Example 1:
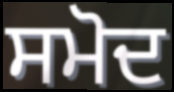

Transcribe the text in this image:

ਸਮੋਦ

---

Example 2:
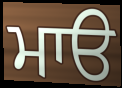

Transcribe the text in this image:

ਮਾੳ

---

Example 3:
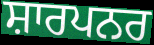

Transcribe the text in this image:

ਸ਼ਾਰਪਨਰ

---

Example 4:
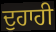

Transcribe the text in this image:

ਦੁਹਾਹੀ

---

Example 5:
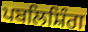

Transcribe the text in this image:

ਪਬਲਿਸ਼ਿੰਗ